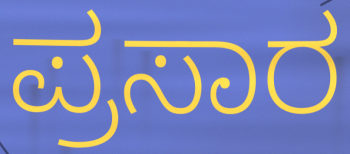
ಪ್ರಸಾರ